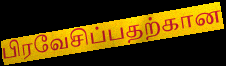
பிரவேசிப்பதற்கான